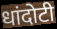
धांदोटी